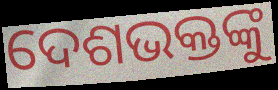
ଦେଶଭକ୍ତଙ୍କୁ